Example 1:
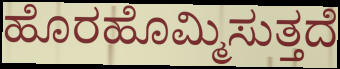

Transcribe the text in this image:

ಹೊರಹೊಮ್ಮಿಸುತ್ತದೆ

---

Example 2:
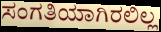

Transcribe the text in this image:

ಸಂಗತಿಯಾಗಿರಲಿಲ್ಲ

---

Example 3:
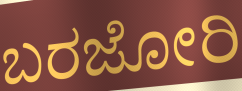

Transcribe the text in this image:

ಬರಜೋರಿ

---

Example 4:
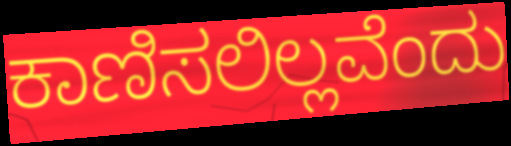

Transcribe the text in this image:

ಕಾಣಿಸಲಿಲ್ಲವೆಂದು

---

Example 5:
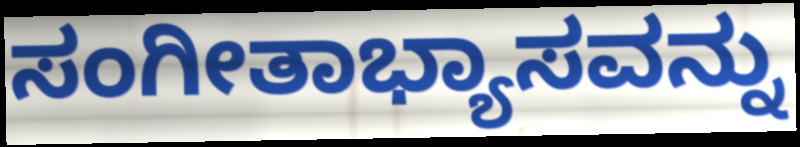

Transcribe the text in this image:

ಸಂಗೀತಾಭ್ಯಾಸವನ್ನು